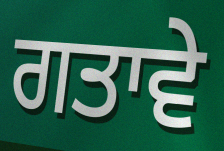
ਗਤਾਵੇ